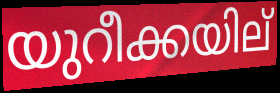
യുറീക്കയില്